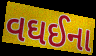
વઘઈના